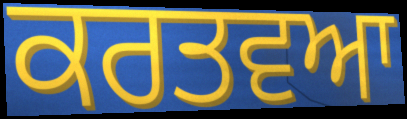
ਕਰਤਵਆ